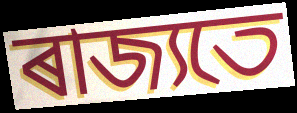
ৰাজ্যতে